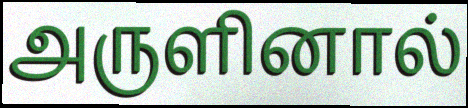
அருளினால்